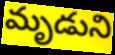
మృడుని